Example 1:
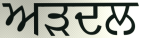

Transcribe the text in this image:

ਅੜਦਲ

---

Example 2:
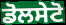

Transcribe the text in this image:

ਡੋਲਸੇਟੋ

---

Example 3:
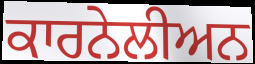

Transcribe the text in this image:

ਕਾਰਨੇਲੀਅਨ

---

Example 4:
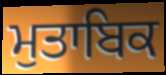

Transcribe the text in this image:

ਮੁਤਾਬਿਕ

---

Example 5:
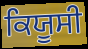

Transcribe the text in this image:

ਕਿਯੂਸੀ